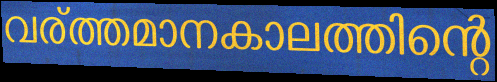
വര്ത്തമാനകാലത്തിന്റെ